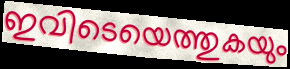
ഇവിടെയെത്തുകയും